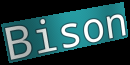
Bison